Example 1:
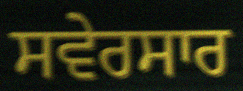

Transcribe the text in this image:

ਸਵੇਰਸਾਰ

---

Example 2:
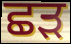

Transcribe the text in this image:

ਛੜ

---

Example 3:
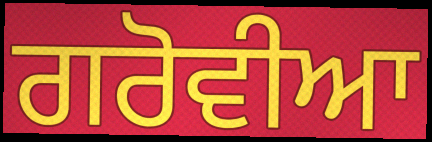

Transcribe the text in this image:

ਗਰੋਵੀਆ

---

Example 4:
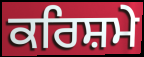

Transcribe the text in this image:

ਕਰਿਸ਼ਮੇ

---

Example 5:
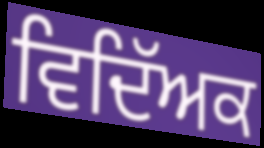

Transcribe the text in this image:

ਵਿਦਿੱਅਕ